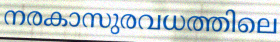
നരകാസുരവധത്തിലെ